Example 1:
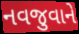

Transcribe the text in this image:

નવજુવાને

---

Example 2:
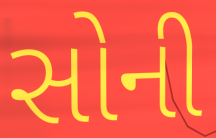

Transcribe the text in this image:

સોની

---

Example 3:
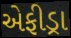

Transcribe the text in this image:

એફીડ્રા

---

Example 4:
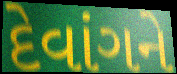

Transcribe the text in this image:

દેવાંગને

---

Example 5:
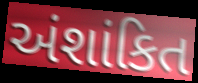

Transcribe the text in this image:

અંશાંકિત